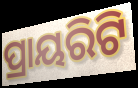
ପ୍ରାୟରିଟି